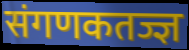
संगणकतज्ज्ञ